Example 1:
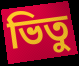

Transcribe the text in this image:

ভিতু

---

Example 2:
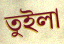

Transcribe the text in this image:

তুইলা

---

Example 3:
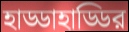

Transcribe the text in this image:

হাড্ডাহাড্ডির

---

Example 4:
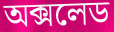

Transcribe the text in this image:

অক্সলেড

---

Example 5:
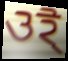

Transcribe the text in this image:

ওই্